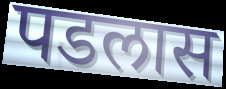
पडलास